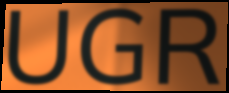
UGR